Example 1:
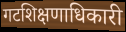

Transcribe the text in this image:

गटशिक्षणाधिकारी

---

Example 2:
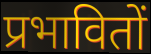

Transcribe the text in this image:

प्रभावितों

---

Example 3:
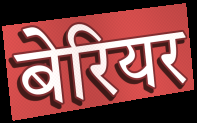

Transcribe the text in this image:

बेरियर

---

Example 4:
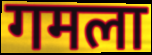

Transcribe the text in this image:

गमला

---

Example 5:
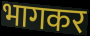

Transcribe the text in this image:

भागकर